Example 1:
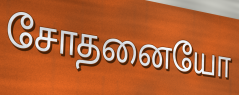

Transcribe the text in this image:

சோதனையோ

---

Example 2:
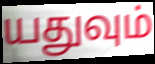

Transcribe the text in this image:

யதுவும்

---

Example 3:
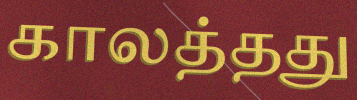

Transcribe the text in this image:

காலத்தது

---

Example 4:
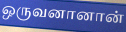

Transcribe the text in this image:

ஒருவனானான்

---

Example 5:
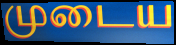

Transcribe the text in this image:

முடைய